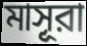
মাসূরা